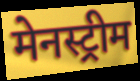
मेनस्ट्रीम